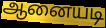
ஆனையடி